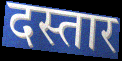
दस्तार